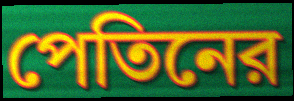
পেতিনের